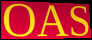
OAS